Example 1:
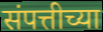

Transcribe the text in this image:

संपत्तीच्या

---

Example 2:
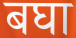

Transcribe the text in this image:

बघा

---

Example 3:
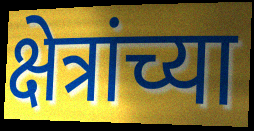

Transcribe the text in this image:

क्षेत्रांच्या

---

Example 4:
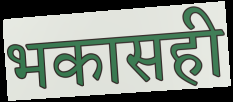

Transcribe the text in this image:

भकासही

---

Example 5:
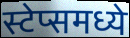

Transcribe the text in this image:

स्टेप्समध्ये